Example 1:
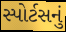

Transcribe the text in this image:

સ્પોર્ટસનું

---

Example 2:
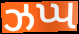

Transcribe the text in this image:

ઝપ્પ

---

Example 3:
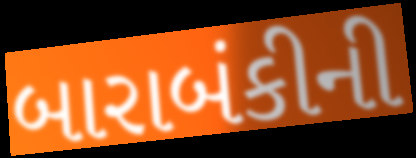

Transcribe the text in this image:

બારાબંકીની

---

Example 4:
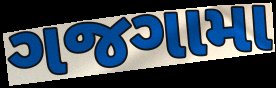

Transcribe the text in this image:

ગજગામા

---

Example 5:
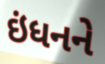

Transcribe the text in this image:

ઇંધનને